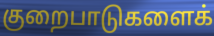
குறைபாடுகளைக்